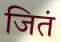
जितं